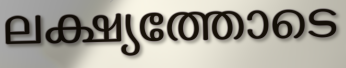
ലക്ഷ്യത്തോടെ